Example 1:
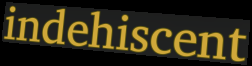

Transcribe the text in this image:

indehiscent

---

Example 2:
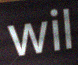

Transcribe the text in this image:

wil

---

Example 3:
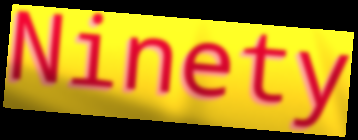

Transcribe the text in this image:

Ninety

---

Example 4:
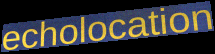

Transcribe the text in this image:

echolocation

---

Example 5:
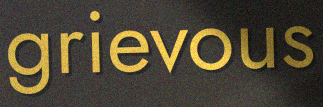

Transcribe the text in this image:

grievous